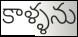
కాళ్ళను